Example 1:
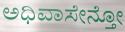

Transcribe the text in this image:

ಅಧಿವಾಸೇನ್ತೋ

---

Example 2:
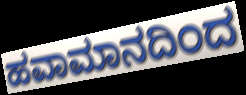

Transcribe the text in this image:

ಹವಾಮಾನದಿಂದ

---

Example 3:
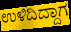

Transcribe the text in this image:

ಉಳಿದಿದ್ದಾಗ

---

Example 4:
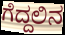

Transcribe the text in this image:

ಗೆದ್ದಲಿನ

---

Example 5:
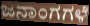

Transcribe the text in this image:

ಜನಾಂಗಗಳೆ